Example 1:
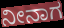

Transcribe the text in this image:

ನೀನಾಗ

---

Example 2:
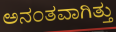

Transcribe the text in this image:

ಅನಂತವಾಗಿತ್ತು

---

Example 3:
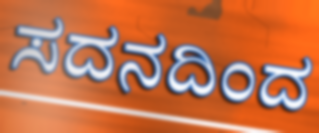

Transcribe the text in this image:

ಸದನದಿಂದ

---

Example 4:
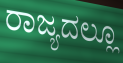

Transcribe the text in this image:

ರಾಜ್ಯದಲ್ಲೂ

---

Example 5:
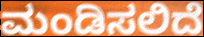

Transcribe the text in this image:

ಮಂಡಿಸಲಿದೆ